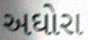
અઘોરા